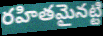
రహితమైనట్టి